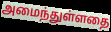
அமைந்துள்ளதை